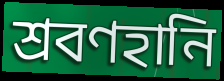
শ্রবণহানি